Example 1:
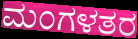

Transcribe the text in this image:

ಮಂಗಳತರ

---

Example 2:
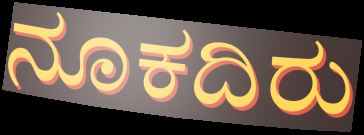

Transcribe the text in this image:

ನೂಕದಿರು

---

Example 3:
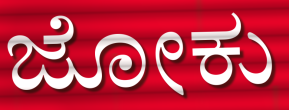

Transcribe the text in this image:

ಜೋಕು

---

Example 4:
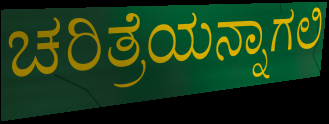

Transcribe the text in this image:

ಚರಿತ್ರೆಯನ್ನಾಗಲಿ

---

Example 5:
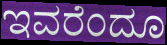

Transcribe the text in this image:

ಇವರೆಂದೂ